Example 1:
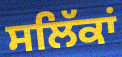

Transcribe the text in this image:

ਸਲਿੱਕਾਂ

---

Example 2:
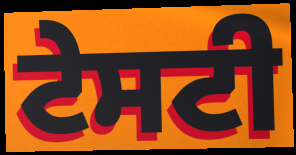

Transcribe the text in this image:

ਟੇਸਟੀ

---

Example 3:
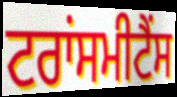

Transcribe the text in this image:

ਟਰਾਂਸਮੀਟੈਂਸ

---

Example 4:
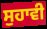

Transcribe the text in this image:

ਸੁਹਾਵੀ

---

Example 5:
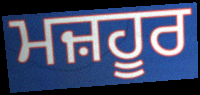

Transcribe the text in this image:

ਮਜ਼ਹੂਰ